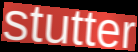
stutter